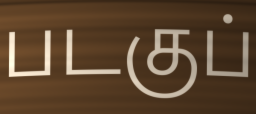
படகுப்